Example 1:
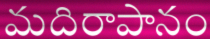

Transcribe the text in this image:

మదిరాపానం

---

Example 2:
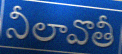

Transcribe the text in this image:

నీలావొతీ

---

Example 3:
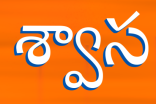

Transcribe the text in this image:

శ్వాస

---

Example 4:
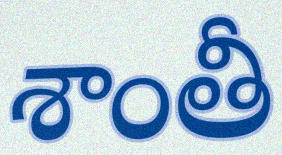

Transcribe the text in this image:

శాంతీ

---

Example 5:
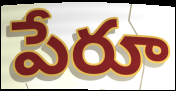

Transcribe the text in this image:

పేరూ